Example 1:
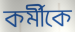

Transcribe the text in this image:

কর্মীকে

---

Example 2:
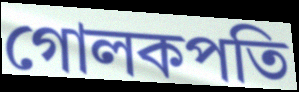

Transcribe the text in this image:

গোলকপতি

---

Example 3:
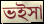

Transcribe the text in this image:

ভইসা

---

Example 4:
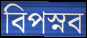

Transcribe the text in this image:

বিপস্নব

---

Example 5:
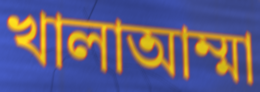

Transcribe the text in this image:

খালাআম্মা